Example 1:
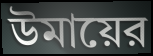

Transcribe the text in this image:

উমায়ের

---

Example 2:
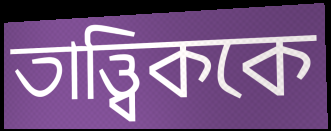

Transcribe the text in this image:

তাত্ত্বিককে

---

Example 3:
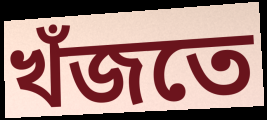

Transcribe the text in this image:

খঁজতে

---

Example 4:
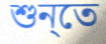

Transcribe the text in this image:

শুন্‌তে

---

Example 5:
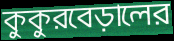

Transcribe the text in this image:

কুকুরবেড়ালের